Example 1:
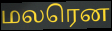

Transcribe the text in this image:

மலரென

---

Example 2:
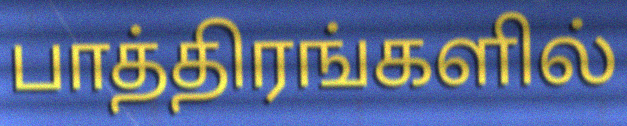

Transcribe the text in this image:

பாத்திரங்களில்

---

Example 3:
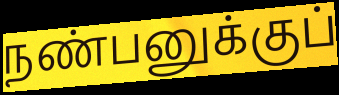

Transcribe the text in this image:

நண்பனுக்குப்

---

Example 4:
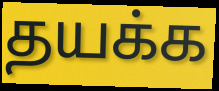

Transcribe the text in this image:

தயக்க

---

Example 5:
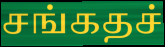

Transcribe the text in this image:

சங்கதச்